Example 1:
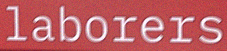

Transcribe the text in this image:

laborers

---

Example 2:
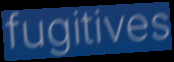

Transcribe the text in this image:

fugitives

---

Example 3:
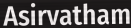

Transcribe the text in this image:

Asirvatham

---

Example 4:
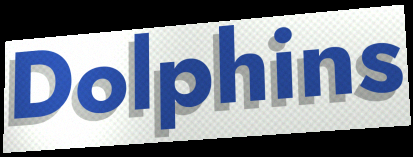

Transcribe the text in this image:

Dolphins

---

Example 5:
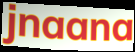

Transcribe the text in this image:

jnaana